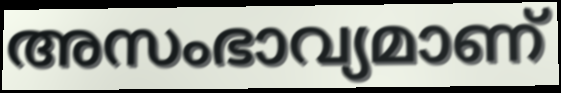
അസംഭാവ്യമാണ്